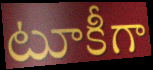
టూకీగా